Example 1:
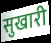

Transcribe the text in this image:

सुखारी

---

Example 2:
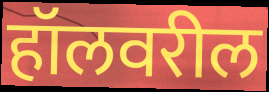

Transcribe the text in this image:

हॉलवरील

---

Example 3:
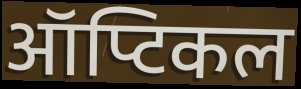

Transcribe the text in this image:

ऑप्टिकल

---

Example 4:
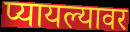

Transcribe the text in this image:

प्यायल्यावर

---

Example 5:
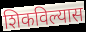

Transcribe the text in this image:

शिकविल्यास